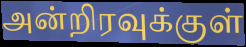
அன்றிரவுக்குள்